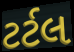
ટર્ટલ